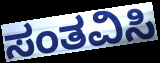
ಸಂತವಿಸಿ